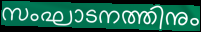
സംഘാടനത്തിനും